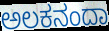
ಅಲಕನಂದಾ